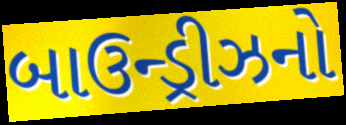
બાઉન્ડ્રીઝનો